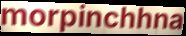
morpinchhna